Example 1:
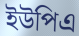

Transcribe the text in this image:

ইউপিএ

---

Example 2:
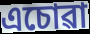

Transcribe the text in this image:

এচোৱা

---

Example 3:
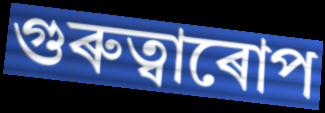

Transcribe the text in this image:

গুৰুত্বাৰোপ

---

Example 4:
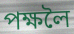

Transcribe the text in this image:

পক্ষলৈ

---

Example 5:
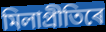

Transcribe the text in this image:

মিলাপ্ৰীতিৰে